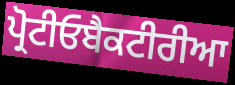
ਪ੍ਰੋਟੀਓਬੈਕਟੀਰੀਆ